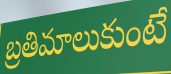
బ్రతిమాలుకుంటే